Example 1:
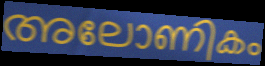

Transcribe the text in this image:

അലോണികം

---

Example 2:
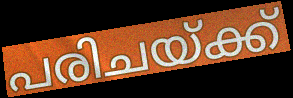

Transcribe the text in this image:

പരിചയ്ക്ക്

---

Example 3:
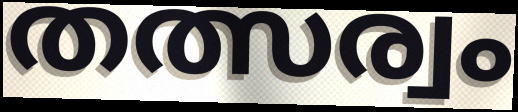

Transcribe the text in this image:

തത്സര്വം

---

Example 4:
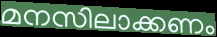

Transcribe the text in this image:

മനസിലാക്കണം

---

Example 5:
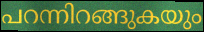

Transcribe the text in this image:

പറന്നിറങ്ങുകയും